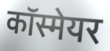
कॉस्मेयर